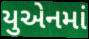
યુએનમાં